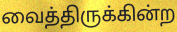
வைத்திருக்கின்ற